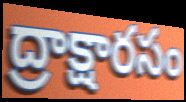
ద్రాక్షారసం